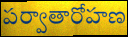
పర్వాతారోహణ